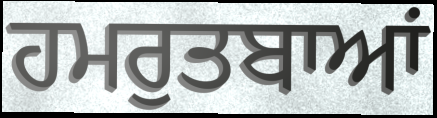
ਹਮਰੁਤਬਾਆਂ